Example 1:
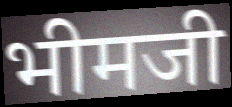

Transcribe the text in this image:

भीमजी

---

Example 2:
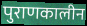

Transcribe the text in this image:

पुराणकालीन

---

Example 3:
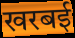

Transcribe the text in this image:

खरबई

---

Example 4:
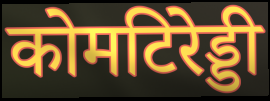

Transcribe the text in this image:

कोमटिरेड्डी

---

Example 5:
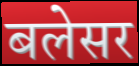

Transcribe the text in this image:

बलेसर